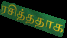
ரசித்ததாக